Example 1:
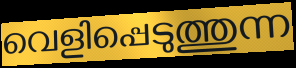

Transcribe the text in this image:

വെളിപ്പെടുത്തുന്ന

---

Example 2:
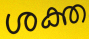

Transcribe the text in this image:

ശക്ത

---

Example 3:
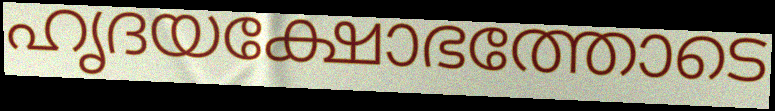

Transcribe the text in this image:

ഹൃദയക്ഷോഭത്തോടെ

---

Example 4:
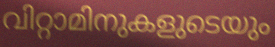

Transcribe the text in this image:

വിറ്റാമിനുകളുടെയും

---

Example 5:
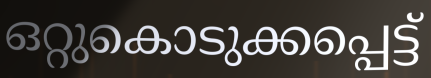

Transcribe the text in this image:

ഒറ്റുകൊടുക്കപ്പെട്ട്